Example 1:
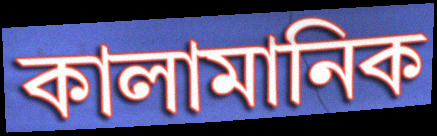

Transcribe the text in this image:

কালামানিক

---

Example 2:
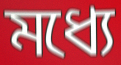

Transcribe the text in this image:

মধ্যে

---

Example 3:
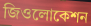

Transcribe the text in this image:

জিওলোকেশন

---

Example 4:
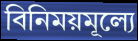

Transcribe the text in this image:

বিনিময়মূল্যে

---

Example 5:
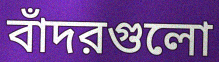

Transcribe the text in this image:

বাঁদরগুলো